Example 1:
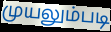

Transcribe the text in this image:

முயலும்படி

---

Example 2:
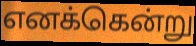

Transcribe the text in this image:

எனக்கென்று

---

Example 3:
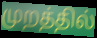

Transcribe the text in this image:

முறத்தில்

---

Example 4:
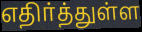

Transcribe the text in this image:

எதிர்த்துள்ள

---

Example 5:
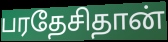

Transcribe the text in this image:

பரதேசிதான்